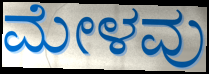
ಮೇಳವು